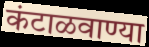
कंटाळवाण्या